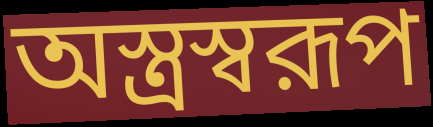
অস্ত্রস্বরূপ